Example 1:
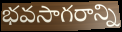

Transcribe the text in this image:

భవసాగరాన్ని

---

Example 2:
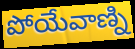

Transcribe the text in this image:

పోయేవాణ్ని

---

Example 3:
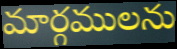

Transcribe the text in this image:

మార్గములను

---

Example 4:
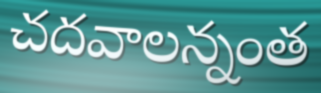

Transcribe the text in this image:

చదవాలన్నంత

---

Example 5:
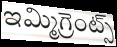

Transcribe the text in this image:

ఇమ్మిగ్రెంట్స్